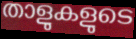
താളുകളുടെ